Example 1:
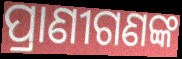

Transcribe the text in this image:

ପ୍ରାଣୀଗଣଙ୍କ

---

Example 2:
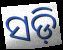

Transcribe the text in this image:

ସଡ଼ି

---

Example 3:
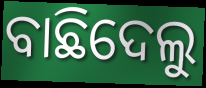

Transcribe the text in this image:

ବାଛିଦେଲୁ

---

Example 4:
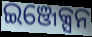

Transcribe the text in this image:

ଇଞ୍ଜେକ୍ସନ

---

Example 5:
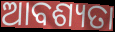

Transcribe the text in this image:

ଆବଶ୍ୟତା